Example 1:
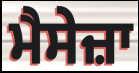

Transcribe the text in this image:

ਮੈਸੇਜ਼ਾ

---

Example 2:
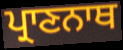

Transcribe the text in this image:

ਪ੍ਰਾਣਨਾਥ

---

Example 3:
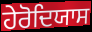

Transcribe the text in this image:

ਹੇਰੋਦਿਯਾਸ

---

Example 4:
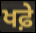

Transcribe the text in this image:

ਖਫ਼ੇ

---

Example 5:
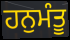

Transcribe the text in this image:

ਹਨੁਮੰਤੂ